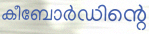
കീബോർഡിന്റെ